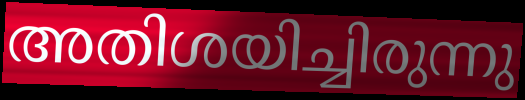
അതിശയിച്ചിരുന്നു